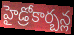
హైడ్రోకార్బన్ల